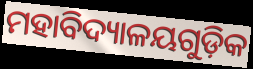
ମହାବିଦ୍ୟାଳୟଗୁଡ଼ିକ